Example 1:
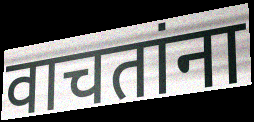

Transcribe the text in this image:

वाचतांना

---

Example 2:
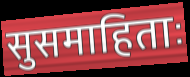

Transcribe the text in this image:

सुसमाहिताः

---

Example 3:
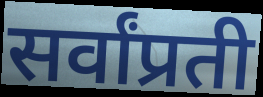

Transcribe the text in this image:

सर्वांप्रती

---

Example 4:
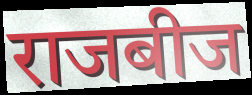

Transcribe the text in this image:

राजबीज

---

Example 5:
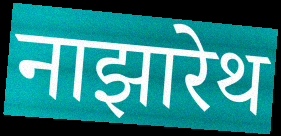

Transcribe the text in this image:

नाझारेथ